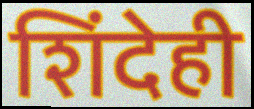
शिंदेही